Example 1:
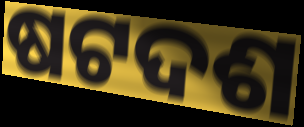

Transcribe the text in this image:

ଷଟଦଶ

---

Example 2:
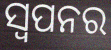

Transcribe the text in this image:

ସ୍ଵପନର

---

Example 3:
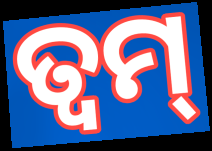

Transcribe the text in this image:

ତ୍ୱମ୍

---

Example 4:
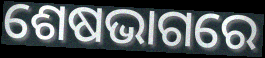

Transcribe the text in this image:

ଶେଷଭାଗରେ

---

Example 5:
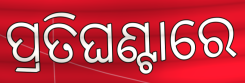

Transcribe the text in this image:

ପ୍ରତିଘଣ୍ଟାରେ